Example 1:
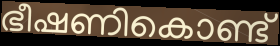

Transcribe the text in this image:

ഭീഷണികൊണ്ട്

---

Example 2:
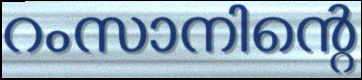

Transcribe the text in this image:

റംസാനിന്റെ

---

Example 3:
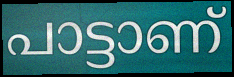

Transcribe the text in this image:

പാട്ടാണ്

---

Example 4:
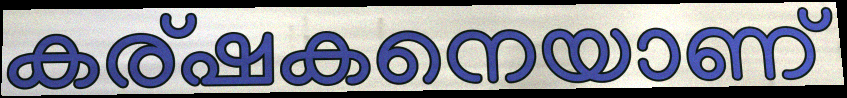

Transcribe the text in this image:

കര്ഷകനെയാണ്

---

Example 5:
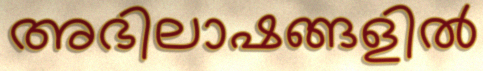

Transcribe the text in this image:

അഭിലാഷങ്ങളിൽ